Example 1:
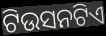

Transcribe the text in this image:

ଟିଉସନଟିଏ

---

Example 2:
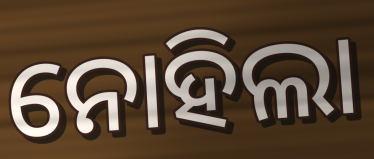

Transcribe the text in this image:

ନୋହିଲା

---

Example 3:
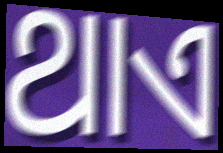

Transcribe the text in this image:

ଥାଏ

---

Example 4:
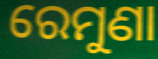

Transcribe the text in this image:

ରେମୁଣା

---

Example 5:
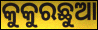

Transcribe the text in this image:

କୁକୁରଛୁଆ